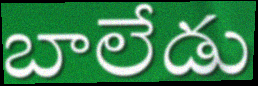
బాలేడు